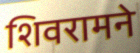
शिवरामने